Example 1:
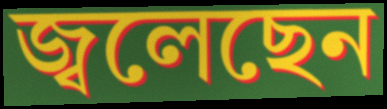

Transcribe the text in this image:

জ্বলেছেন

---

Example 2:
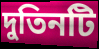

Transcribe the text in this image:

দুতিনটি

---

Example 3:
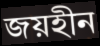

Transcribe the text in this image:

জয়হীন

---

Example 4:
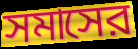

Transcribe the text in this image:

সমাসের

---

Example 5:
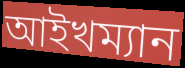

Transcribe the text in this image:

আইখম্যান